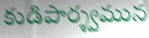
కుడిపార్శ్వమున